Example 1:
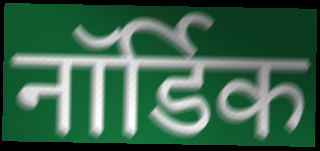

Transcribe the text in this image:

नॉर्डिक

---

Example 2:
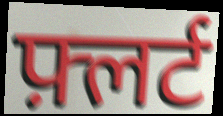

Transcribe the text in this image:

फ़्लर्ट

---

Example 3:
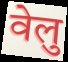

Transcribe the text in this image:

वेलु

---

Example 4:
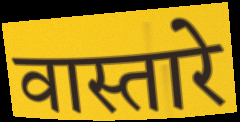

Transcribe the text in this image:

वास्तारे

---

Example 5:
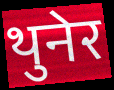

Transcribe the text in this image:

थुनेर